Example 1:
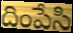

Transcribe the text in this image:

దింపేసి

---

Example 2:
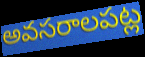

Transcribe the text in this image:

అవసరాలపట్ల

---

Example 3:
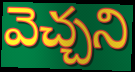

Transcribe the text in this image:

వెచ్చని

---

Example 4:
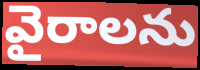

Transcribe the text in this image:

వైరాలను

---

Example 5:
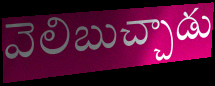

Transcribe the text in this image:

వెలిబుచ్చాడు